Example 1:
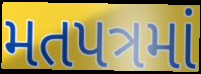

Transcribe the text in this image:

મતપત્રમાં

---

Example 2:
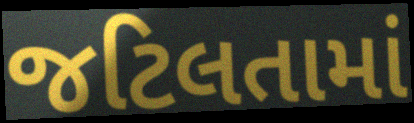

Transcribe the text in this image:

જટિલતામાં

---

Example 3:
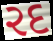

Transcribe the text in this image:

રદ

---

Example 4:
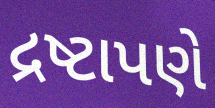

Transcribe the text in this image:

દ્રષ્ટાપણે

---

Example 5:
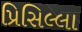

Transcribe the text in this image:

પ્રિસિલ્લા